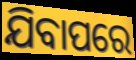
ଯିବାପରେ